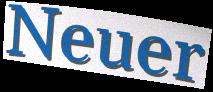
Neuer